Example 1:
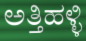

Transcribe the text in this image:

ಅತ್ತಿಹಳ್ಳಿ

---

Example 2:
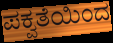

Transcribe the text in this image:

ಪಕ್ವತೆಯಿಂದ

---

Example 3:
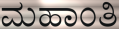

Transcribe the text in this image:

ಮಹಾಂತಿ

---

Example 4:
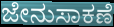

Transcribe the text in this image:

ಜೇನುಸಾಕಣೆ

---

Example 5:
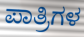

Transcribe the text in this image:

ಪಾತ್ರಿಗಳ